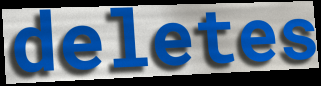
deletes